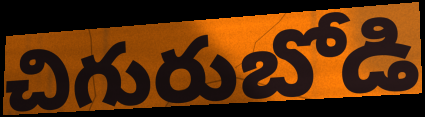
చిగురుబోడి